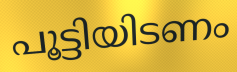
പൂട്ടിയിടണം